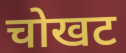
चोखट